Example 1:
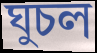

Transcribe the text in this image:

ঘুচল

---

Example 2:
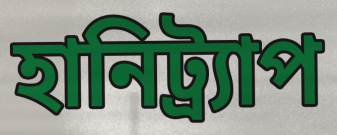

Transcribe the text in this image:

হানিট্র্যাপ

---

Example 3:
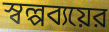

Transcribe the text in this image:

স্বল্পব্যয়ের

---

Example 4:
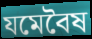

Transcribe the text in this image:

যমেবৈষ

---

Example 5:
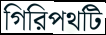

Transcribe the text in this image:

গিরিপথটি